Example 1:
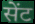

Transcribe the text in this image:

सेंट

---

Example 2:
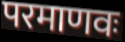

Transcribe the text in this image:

परमाणवः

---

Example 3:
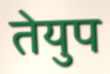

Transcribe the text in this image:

तेयुप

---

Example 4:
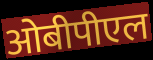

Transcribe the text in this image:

ओबीपीएल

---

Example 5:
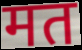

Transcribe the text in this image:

मत